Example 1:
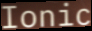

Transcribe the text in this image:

Ionic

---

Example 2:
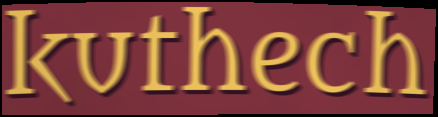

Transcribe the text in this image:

kuthech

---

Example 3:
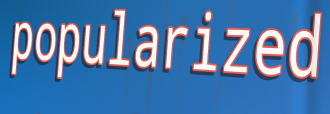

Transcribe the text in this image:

popularized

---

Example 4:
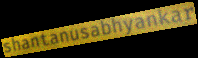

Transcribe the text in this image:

shantanusabhyankar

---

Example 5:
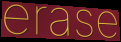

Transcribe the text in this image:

erase